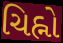
ચિહ્નો